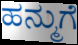
ಹನ್ಮುಗೆ